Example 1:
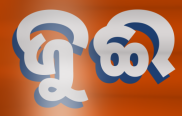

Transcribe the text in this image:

ଜୁଈ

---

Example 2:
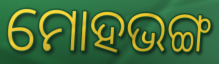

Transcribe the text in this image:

ମୋହଭଙ୍ଗ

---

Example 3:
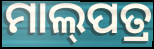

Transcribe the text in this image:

ମାଲ୍‌ପତ୍ର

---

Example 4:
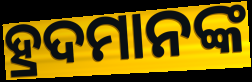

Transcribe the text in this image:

ହ୍ରଦମାନଙ୍କ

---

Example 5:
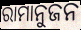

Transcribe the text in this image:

ରାମାନୁଜନ